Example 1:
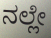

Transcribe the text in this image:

ನಲ್ಲೇ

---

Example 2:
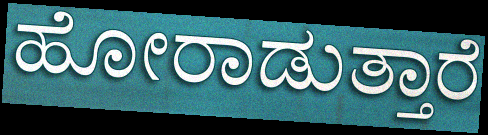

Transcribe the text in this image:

ಹೋರಾಡುತ್ತಾರೆ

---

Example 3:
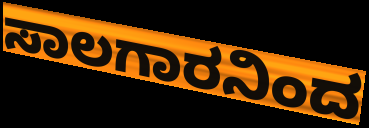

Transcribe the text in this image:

ಸಾಲಗಾರನಿಂದ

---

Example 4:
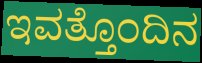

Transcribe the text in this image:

ಇವತ್ತೊಂದಿನ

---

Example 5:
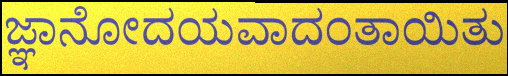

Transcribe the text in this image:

ಜ್ಞಾನೋದಯವಾದಂತಾಯಿತು